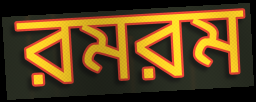
রমরম